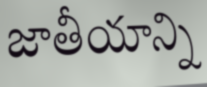
జాతీయాన్ని